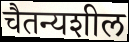
चैतन्यशील